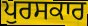
ਪੁਰਸਕਾਰ